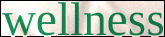
wellness